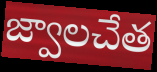
జ్వాలచేత